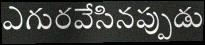
ఎగురవేసినప్పుడు